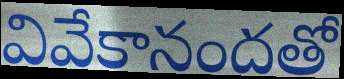
వివేకానందతో